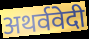
अथर्ववेदी